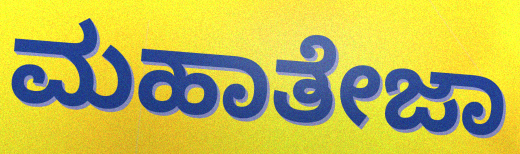
ಮಹಾತೇಜಾ